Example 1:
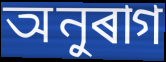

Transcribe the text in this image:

অনুৰাগ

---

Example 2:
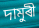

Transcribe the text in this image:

দামুৰী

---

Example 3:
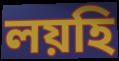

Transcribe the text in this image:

লয়হি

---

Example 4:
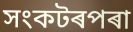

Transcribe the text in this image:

সংকটৰপৰা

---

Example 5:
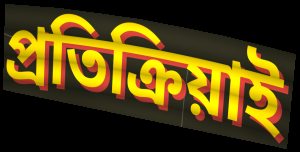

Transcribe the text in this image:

প্ৰতিক্ৰিয়াই